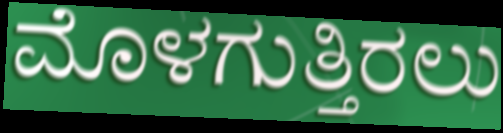
ಮೊಳಗುತ್ತಿರಲು